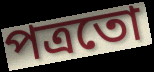
পত্ৰতো